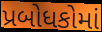
પ્રબોધકોમાં